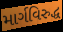
માર્ગવિરુદ્ધ